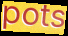
pots